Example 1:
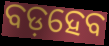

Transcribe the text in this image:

ବଡ଼ହେବ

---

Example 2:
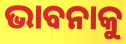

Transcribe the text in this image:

ଭାବନାକୁ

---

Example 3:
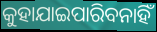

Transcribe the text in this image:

କୁହାଯାଇପାରିବନାହିଁ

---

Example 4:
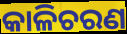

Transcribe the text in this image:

କାଳିଚରଣ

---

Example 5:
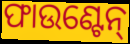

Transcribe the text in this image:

ଫାଉଣ୍ଟେନ୍